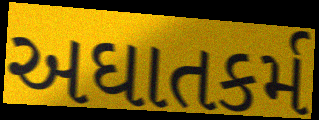
અઘાતકર્મ